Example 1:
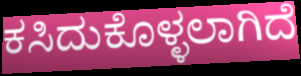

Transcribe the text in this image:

ಕಸಿದುಕೊಳ್ಳಲಾಗಿದೆ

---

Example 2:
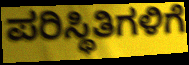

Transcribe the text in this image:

ಪರಿಸ್ಥಿತಿಗಳಿಗೆ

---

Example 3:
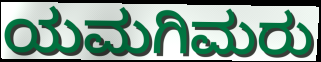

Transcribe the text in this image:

ಯಮಗಿಮರು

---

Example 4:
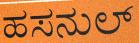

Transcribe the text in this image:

ಹಸನುಲ್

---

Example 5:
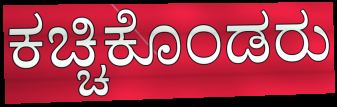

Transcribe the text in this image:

ಕಚ್ಚಿಕೊಂಡರು